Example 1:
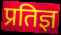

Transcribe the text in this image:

प्रतिज्ञ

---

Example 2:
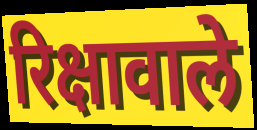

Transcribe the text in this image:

रिक्षावाले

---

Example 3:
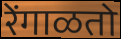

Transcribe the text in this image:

रेंगाळतो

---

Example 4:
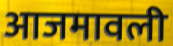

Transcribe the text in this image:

आजमावली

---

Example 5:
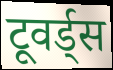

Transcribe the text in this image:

टूवर्ड्स